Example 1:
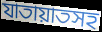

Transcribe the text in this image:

যাতায়াতসহ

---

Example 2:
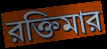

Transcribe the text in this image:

রক্তিমার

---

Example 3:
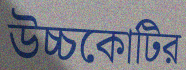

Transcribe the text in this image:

উচ্চকোটির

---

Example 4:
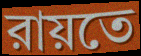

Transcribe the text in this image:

রায়তে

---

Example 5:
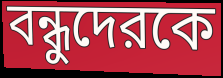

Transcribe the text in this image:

বন্ধুদেরকে